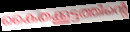
കൈതക്കൂട്ടത്തിന്റെ